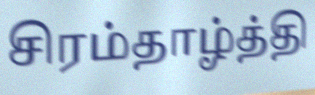
சிரம்தாழ்த்தி